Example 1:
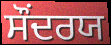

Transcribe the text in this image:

ਸੌਂਦਰਯ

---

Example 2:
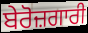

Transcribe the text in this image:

ਬੇਰੋਜ਼ਗਾਰੀ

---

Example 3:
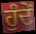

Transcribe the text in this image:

ਹੁੰਦੇਂ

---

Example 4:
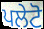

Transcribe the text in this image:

ਪਲੇਟੋ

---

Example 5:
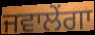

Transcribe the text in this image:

ਜਵਾਲੇਂਗਾ